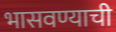
भासवण्याची